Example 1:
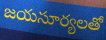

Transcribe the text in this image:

జయసూర్యలతో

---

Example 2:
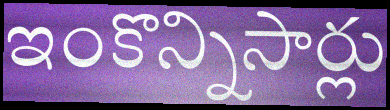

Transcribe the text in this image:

ఇంకొన్నిసార్లు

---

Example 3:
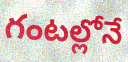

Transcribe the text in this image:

గంటల్లోనే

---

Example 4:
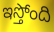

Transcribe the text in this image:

ఇస్తోంది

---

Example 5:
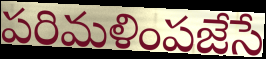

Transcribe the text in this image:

పరిమళింపజేసే